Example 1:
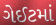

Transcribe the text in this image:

ગેઈટમાં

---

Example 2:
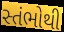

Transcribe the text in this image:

સ્તંભોથી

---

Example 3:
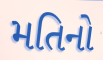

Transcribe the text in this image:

મતિનો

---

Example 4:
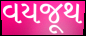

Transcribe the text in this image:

વયજૂથ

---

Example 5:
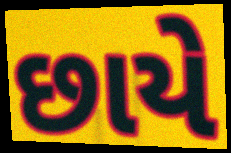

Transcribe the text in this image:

છાયે